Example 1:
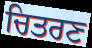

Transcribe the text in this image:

ਚਿਤਰਣ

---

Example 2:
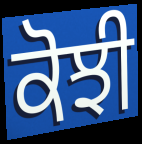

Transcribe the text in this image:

ਕੋਝੀ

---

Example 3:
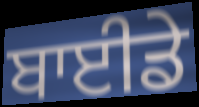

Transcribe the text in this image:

ਬਾਈਡੇ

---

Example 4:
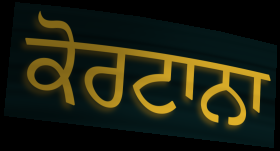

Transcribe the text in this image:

ਕੋਰਟਾਨਾ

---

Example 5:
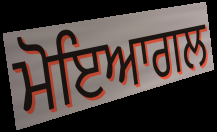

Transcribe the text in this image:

ਮੋਇਆਗਲ